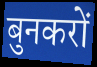
बुनकरों